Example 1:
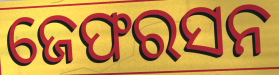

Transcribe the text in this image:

ଜେଫରସନ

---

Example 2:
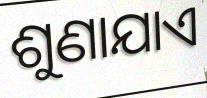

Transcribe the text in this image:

ଶୁଣାଯାଏ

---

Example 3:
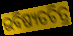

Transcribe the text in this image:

ଭବିଷ୍ୟତଚିତ୍ର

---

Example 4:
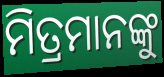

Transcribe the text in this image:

ମିତ୍ରମାନଙ୍କୁ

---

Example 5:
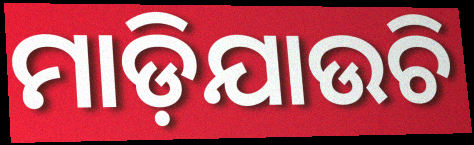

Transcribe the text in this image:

ମାଡ଼ିଯାଉଚି